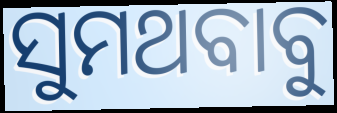
ସୁମଥବାବୁ